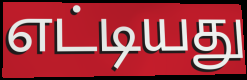
எட்டியது